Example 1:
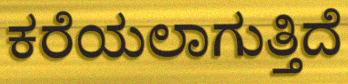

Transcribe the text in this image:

ಕರೆಯಲಾಗುತ್ತಿದೆ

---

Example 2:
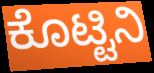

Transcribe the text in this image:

ಕೊಟ್ಟಿನಿ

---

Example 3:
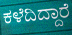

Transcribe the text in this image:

ಕಳೆದಿದ್ದಾರೆ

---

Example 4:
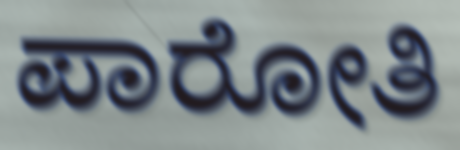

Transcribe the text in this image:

ಪಾರೋತಿ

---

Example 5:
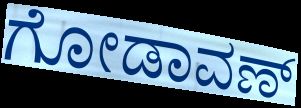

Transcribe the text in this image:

ಗೋಡಾವಣ್